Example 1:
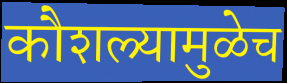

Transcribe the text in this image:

कौशल्यामुळेच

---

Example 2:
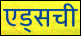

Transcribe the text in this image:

एड्सची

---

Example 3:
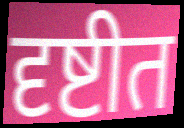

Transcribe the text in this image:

दृष्टीत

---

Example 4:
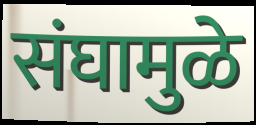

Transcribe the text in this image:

संघामुळे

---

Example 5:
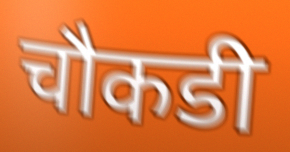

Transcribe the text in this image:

चौकडी